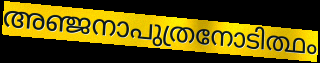
അഞ്ജനാപുത്രനോടിത്ഥം